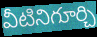
వీటినిగూర్చి